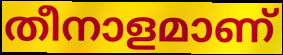
തീനാളമാണ്